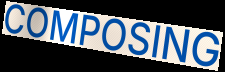
COMPOSING